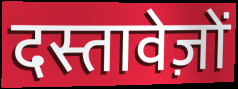
दस्तावेज़ों